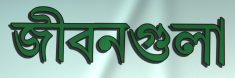
জীবনগুলা